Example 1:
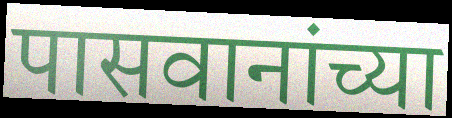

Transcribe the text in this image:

पासवानांच्या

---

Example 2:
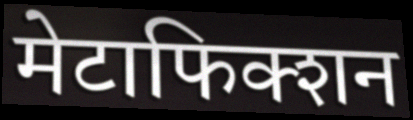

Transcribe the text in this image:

मेटाफिक्शन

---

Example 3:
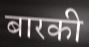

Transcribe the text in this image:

बारकी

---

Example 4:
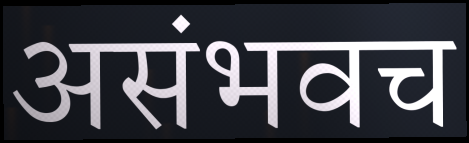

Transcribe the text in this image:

असंभवच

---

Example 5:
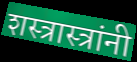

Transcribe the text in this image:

शस्त्रास्त्रांनी